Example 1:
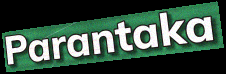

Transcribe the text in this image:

Parantaka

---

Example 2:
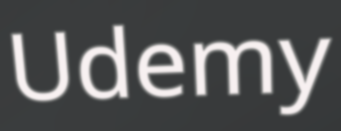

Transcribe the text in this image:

Udemy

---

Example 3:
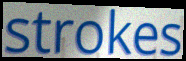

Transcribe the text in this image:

strokes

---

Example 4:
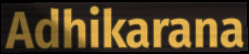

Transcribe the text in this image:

Adhikarana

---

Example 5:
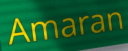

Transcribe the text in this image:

Amaran